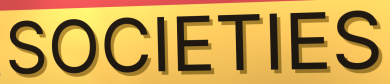
SOCIETIES